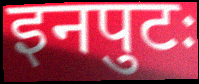
इनपुटः